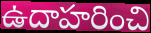
ఉదాహరించి